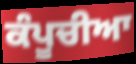
ਕੰਪੂਚੀਆ